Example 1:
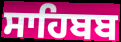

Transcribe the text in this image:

ਸਾਹਿਬਬ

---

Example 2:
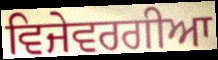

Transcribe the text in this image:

ਵਿਜੇਵਰਗੀਆ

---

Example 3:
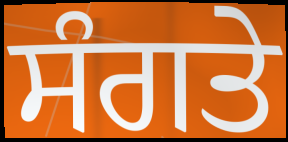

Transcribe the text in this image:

ਸੰਗਤੇ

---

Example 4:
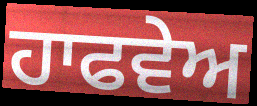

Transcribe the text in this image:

ਹਾਫਵੇਅ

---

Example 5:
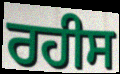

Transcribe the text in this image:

ਰਹੀਸ